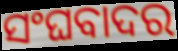
ସଂଘବାଦର